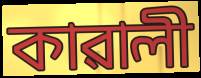
কাৱালী